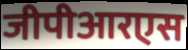
जीपीआरएस